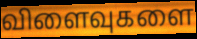
விளைவுகளை